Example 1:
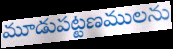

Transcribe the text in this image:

మూడుపట్టణములను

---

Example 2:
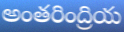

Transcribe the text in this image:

అంతరింద్రియ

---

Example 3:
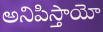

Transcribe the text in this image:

అనిపిస్తాయో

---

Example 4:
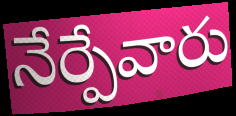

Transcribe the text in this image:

నేర్పేవారు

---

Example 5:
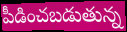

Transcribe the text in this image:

పీడించబడుతున్న